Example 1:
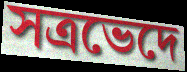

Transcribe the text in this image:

সত্ৰভেদে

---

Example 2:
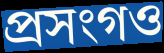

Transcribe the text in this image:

প্ৰসংগও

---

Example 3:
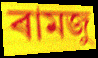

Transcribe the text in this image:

ৰামজু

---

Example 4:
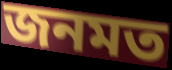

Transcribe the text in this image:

জনমত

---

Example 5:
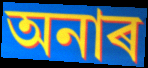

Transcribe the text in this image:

অনাৰ